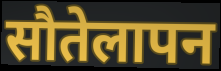
सौतेलापन